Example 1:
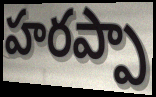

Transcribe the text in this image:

హరప్పా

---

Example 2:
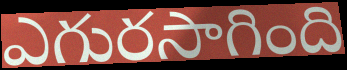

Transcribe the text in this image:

ఎగురసాగింది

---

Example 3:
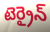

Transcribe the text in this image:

టెర్రైన్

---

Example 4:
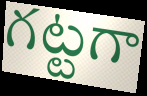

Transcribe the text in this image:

గట్టగా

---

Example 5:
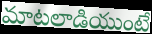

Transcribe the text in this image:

మాటలాడియుంటే